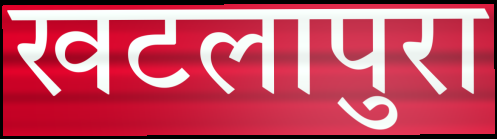
खटलापुरा